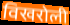
विखरोली